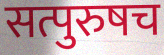
सत्पुरुषच